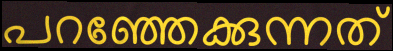
പറഞ്ഞേക്കുന്നത്